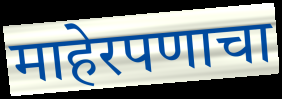
माहेरपणाचा